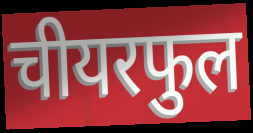
चीयरफुल